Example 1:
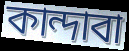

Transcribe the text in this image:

কান্দাবা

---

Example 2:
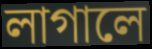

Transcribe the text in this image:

লাগালে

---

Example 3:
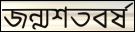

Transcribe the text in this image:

জন্মশতবর্ষ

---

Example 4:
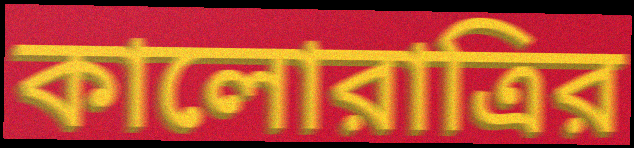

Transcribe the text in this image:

কালোরাত্রির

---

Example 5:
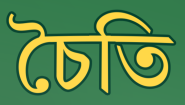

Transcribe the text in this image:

চৈতি